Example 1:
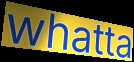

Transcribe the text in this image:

whatta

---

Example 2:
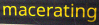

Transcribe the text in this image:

macerating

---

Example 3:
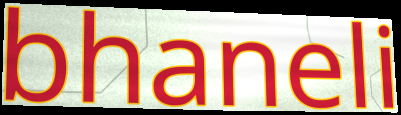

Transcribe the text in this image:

bhaneli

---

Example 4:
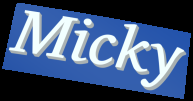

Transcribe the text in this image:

Micky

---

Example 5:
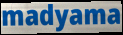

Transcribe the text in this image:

madyama